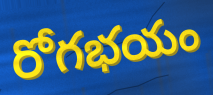
రోగభయం